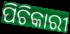
ପିଚିକାରୀ